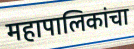
महापालिकांचा